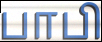
பாபி